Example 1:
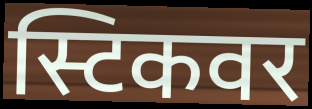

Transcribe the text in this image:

स्टिकवर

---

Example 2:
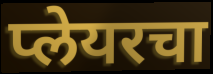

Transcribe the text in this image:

प्लेयरचा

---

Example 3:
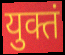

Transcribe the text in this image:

युक्तं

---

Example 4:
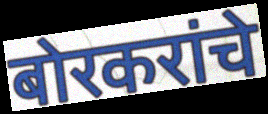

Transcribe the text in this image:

बोरकरांचे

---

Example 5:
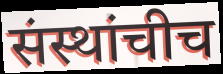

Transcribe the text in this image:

संस्थांचीच